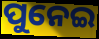
ପୁନେଇ